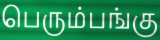
பெரும்பங்கு